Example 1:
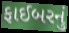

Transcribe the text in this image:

ફાઈબરનું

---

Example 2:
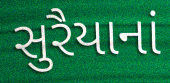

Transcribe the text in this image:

સુરૈયાનાં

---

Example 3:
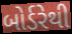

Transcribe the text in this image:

બોર્ડરેથી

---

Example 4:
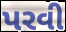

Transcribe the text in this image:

પરવી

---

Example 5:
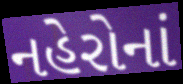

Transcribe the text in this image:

નહેરોનાં